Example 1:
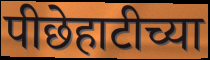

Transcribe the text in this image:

पीछेहाटीच्या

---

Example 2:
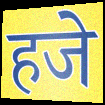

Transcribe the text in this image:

हजे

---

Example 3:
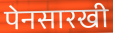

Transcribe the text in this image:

पेनसारखी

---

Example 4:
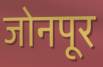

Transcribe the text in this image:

जोनपूर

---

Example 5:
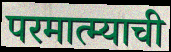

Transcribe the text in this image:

परमात्म्याची